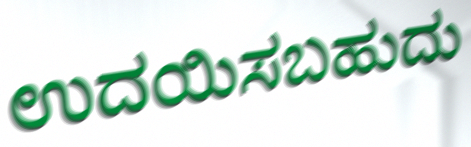
ಉದಯಿಸಬಹುದು